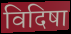
विदिषा